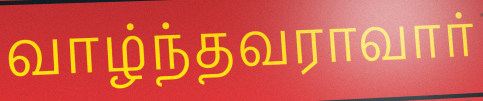
வாழ்ந்தவராவார்